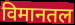
विमानतल